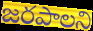
జరపాలని